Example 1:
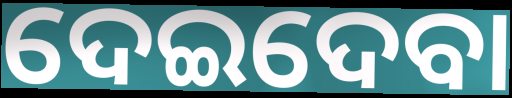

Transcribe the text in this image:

ଦେଇଦେବା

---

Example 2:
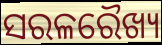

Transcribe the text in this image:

ସରଳରୈଖ୍ୟ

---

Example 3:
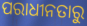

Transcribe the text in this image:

ପରାଧୀନତାରୁ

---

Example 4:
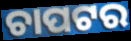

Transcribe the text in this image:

ଚାପଟର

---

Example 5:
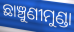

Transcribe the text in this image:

ଛାଞ୍ଚୁଣୀମୁଣ୍ଡା